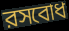
রসবোধ